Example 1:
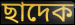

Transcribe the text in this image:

ছাদেক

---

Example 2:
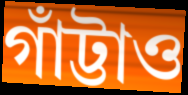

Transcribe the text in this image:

গাঁট্টাও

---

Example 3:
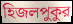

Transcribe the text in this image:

হিজলপুকুর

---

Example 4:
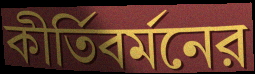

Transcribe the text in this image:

কীর্তিবর্মনের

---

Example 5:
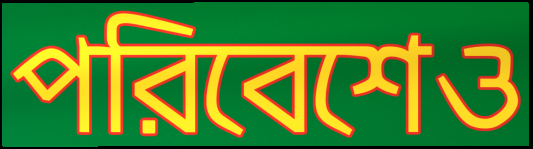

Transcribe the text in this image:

পরিবেশেও